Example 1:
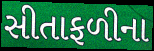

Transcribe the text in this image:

સીતાફળીના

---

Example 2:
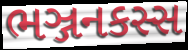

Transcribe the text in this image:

ભઞ્જનકસ્સ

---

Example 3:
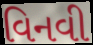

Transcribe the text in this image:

વિનવી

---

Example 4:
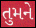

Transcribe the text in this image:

તુમને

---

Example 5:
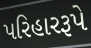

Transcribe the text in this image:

પરિહારરૂપે